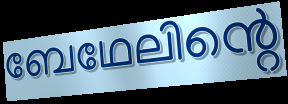
ബേഥേലിന്റെ